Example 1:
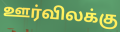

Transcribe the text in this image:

ஊர்விலக்கு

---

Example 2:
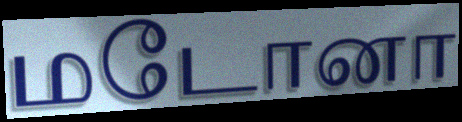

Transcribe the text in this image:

மடோனா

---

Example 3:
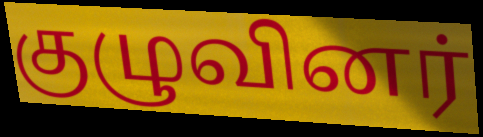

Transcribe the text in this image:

குழுவினர்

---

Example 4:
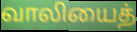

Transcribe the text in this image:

வாலியைத்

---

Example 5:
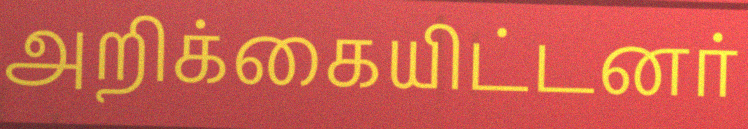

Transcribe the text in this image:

அறிக்கையிட்டனர்